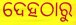
ଦେହଠାରୁ